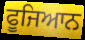
ਫੂਜਿਆਨ